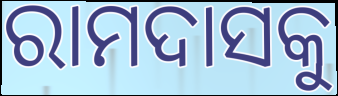
ରାମଦାସକୁ